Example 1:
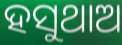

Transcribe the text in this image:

ହସୁଥାଅ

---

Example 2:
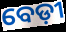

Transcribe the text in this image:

ବେଡ଼ୀ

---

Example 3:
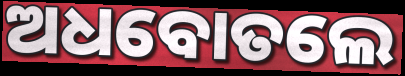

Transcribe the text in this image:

ଅଧବୋତଲେ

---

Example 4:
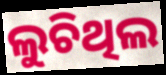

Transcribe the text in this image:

ଲୁଚିଥିଲ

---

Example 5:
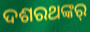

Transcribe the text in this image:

ଦଶରଥଙ୍କର୍